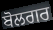
ਬੋਲਗਰ